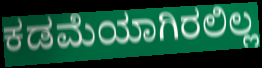
ಕಡಮೆಯಾಗಿರಲಿಲ್ಲ